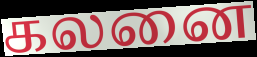
கலனை